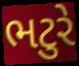
ભટુરે